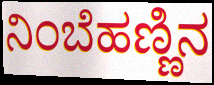
ನಿಂಬೆಹಣ್ಣಿನ